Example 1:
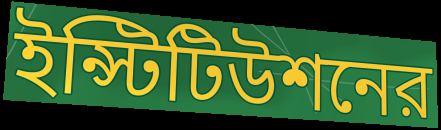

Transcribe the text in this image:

ইন্স্টিটিউশনের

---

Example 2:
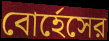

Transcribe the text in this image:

বোর্হেসের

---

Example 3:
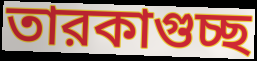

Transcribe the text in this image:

তারকাগুচ্ছ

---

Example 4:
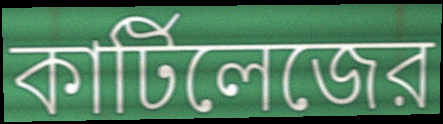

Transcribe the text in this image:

কার্টিলেজের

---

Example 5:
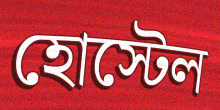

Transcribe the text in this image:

হোস্টেল